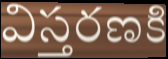
విస్తరణకి